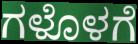
ಗಳೊಳಗೆ